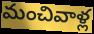
మంచివాళ్ల